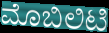
ಮೊಬಿಲಿಟಿ